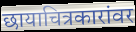
छायाचित्रकारांवर